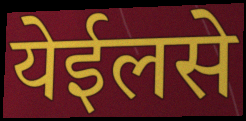
येईलसे